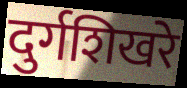
दुर्गशिखरे